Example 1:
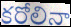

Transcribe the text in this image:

కరోలినా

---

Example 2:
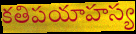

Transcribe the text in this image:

కతిపయాహస్య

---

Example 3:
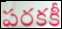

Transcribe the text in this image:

పరకకీ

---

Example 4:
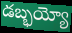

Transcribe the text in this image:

డబ్భయ్యో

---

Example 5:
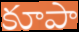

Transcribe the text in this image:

కూపా